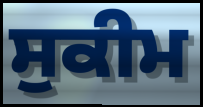
ਸੁਕੀਮ